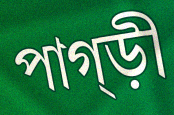
পাগ্ড়ী